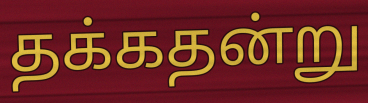
தக்கதன்று